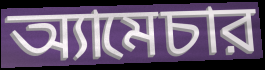
অ্যামেচার